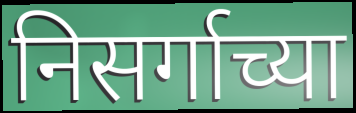
निसर्गाच्या